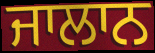
ਜਾਲਾਨ